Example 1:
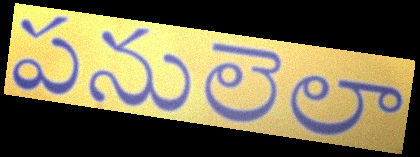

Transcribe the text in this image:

పనులెలా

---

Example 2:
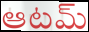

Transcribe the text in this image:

ఆటమ్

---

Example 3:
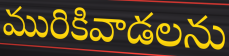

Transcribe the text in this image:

మురికివాడలను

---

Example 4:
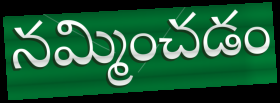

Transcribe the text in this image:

నమ్మించడం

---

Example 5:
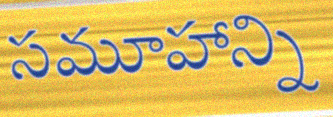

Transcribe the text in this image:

సమూహాన్ని